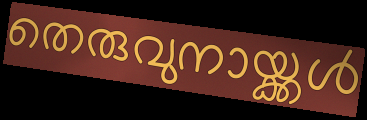
തെരുവുനായ്ക്കൾ